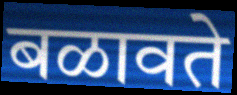
बळावते